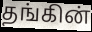
தங்கின்